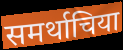
समर्थाचिया